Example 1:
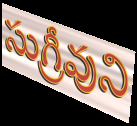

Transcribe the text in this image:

సుగ్రీవుని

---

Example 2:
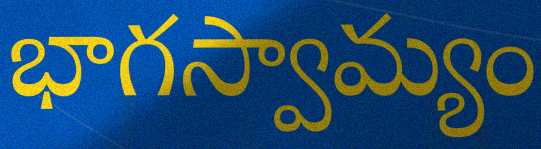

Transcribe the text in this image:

భాగస్వామ్యం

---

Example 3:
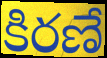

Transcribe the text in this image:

కిరణే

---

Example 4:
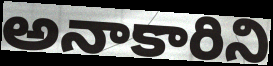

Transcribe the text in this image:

అనాకారిని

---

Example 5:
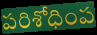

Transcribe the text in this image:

పరిశోధింప